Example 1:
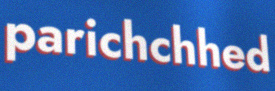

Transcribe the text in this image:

parichchhed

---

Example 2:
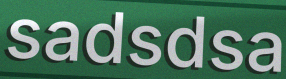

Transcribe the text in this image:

sadsdsa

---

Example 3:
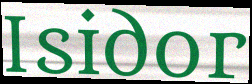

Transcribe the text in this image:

Isidor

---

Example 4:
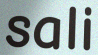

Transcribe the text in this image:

sali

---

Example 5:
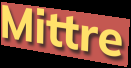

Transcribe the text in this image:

Mittre